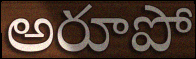
అరూపో